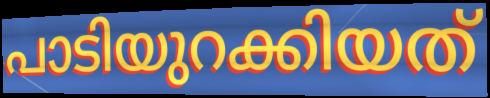
പാടിയുറക്കിയത്